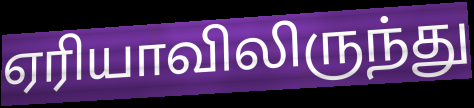
ஏரியாவிலிருந்து